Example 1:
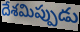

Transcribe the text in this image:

దేశమిప్పుడు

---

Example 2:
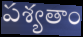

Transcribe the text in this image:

పశ్యతాం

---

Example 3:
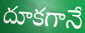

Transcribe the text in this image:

దూకగానే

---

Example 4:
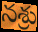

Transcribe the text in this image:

నశ్రు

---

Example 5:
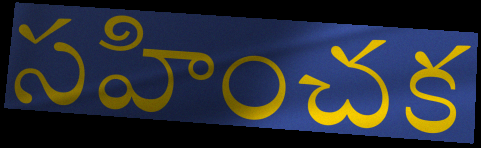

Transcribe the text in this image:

సహించక